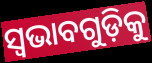
ସ୍ୱଭାବଗୁଡ଼ିକୁ